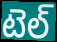
టెల్